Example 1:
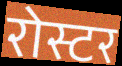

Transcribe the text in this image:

रोस्टर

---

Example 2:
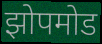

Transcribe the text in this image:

झोपमोड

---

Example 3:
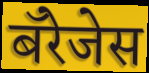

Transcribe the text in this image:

बॅरेजेस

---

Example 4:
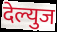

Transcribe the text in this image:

देल्युज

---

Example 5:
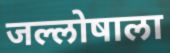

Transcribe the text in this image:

जल्लोषाला